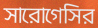
সারোগেসির